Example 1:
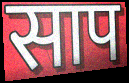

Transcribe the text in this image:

साप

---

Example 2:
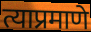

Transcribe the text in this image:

त्याप्रमाणे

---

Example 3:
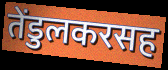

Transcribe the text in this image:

तेंडुलकरसह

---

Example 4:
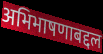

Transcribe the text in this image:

अभिभाषणाबद्दल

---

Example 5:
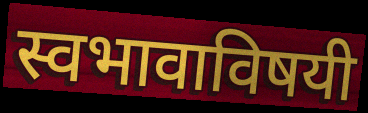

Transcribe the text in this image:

स्वभावाविषयी